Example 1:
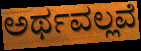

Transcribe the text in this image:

ಅರ್ಥವಲ್ಲವೆ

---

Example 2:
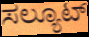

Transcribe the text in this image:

ಸಲ್ಯೂಟ್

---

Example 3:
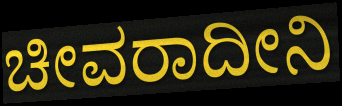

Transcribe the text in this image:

ಚೀವರಾದೀನಿ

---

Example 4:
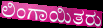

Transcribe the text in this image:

ಲಿಂಗಾಯಿತರು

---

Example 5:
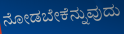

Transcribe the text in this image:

ನೋಡಬೇಕೆನ್ನುವುದು